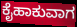
ಕೈಹಾಕುವಾಗ